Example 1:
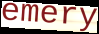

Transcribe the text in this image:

emery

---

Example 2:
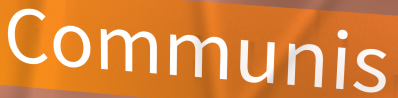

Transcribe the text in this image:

Communis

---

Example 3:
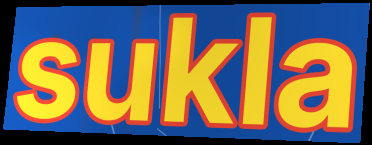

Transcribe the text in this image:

sukla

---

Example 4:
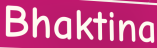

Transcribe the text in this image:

Bhaktina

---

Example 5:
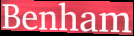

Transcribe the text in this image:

Benham